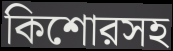
কিশোরসহ